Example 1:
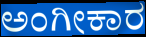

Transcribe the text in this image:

ಅಂಗೀಕಾರ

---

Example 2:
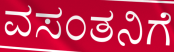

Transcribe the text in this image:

ವಸಂತನಿಗೆ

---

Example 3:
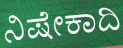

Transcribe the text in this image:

ನಿಷೇಕಾದಿ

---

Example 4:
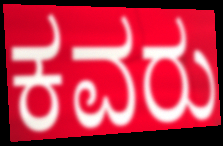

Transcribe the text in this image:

ಕವರು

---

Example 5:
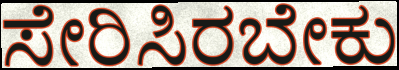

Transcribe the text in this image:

ಸೇರಿಸಿರಬೇಕು